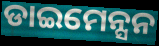
ଡାଇମେନ୍ସନ